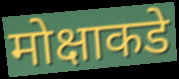
मोक्षाकडे